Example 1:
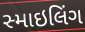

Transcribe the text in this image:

સ્માઇલિંગ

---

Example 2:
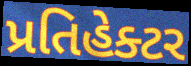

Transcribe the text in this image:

પ્રતિહેક્ટર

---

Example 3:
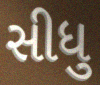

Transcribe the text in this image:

સીધુ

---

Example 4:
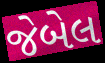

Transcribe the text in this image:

જેબેલ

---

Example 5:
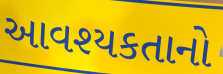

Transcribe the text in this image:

આવશ્યકતાનો